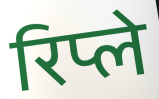
रिप्ले